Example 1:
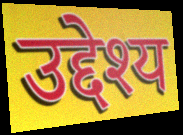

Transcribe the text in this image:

उद्देश्य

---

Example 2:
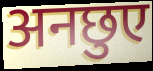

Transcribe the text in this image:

अनछुए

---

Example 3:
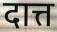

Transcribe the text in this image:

दात्त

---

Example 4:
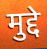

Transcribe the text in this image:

मुद्दे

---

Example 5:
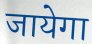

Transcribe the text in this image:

जायेगा